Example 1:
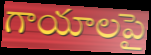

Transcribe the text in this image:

గాయాలపై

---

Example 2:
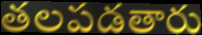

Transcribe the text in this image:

తలపడతారు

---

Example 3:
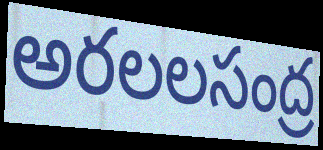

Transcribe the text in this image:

అరలలసంద్ర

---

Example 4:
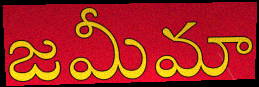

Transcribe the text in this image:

జమీమా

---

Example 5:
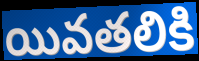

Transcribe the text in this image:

యివతలికి